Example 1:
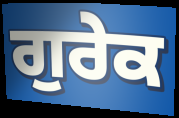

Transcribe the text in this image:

ਗੁਰੇਕ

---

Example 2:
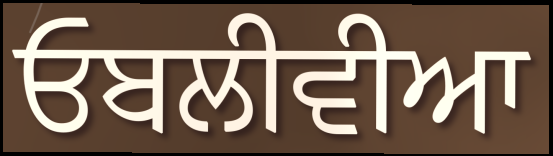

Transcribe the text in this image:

ਓਬਲੀਵੀਆ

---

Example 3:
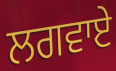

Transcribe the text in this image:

ਲਗਵਾਏ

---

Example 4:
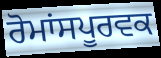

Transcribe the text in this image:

ਰੋਮਾਂਸਪੂਰਵਕ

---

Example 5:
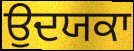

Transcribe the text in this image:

ਉਦਯਕਾ